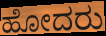
ಹೋದರು